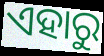
ଏହାରୁ